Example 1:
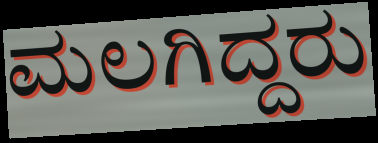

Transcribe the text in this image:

ಮಲಗಿದ್ದರು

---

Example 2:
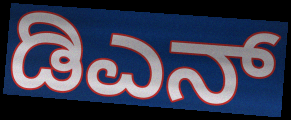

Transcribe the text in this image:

ಡಿಎನ್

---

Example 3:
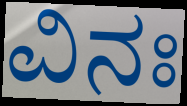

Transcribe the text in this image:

ವಿನಃ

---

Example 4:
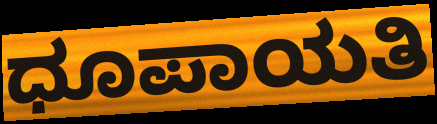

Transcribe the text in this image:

ಧೂಪಾಯತಿ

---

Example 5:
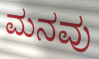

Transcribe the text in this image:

ಮನವು